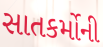
સાતકર્મોની